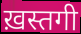
ख़स्तगी